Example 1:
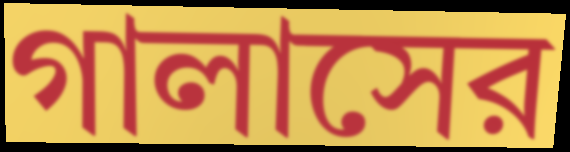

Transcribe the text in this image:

গালাসের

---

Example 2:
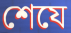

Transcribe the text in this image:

শেযে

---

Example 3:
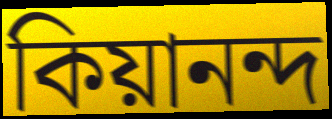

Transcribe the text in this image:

কিয়ানন্দ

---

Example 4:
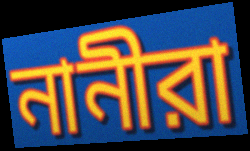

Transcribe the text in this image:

নানীরা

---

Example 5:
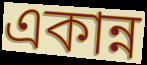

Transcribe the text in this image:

একান্ন